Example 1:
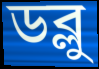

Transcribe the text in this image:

ডব্লু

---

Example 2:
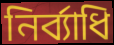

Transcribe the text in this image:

নির্ব্যাধি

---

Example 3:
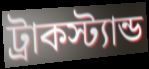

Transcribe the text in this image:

ট্রাকস্ট্যান্ড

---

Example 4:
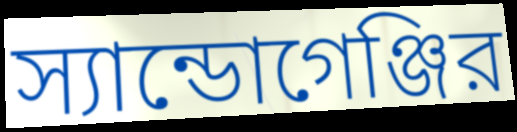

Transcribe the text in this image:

স্যান্ডোগেঞ্জির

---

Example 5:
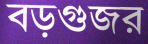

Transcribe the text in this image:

বড়গুজর